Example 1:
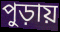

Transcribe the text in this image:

পুড়ায়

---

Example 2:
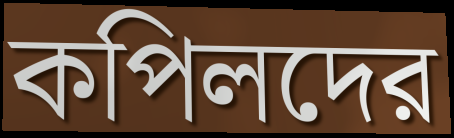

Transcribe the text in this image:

কপিলদের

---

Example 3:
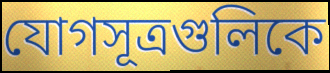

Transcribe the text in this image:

যোগসূত্রগুলিকে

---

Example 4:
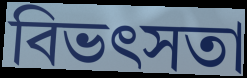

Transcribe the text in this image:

বিভৎসতা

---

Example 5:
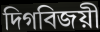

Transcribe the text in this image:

দিগবিজয়ী